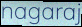
nagaraj